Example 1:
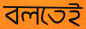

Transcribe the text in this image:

বলতেই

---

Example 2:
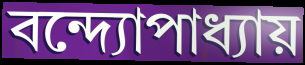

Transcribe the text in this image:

বন্দ্যোপাধ্যায়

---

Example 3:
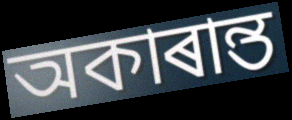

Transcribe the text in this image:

অকাৰান্ত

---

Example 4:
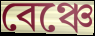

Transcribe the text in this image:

বেঞ্চে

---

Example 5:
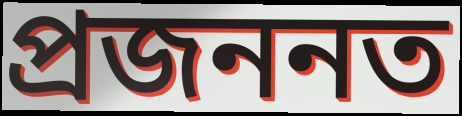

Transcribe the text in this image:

প্ৰজননত